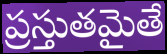
ప్రస్తుతమైతే